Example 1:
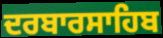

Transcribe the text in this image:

ਦਰਬਾਰਸਾਹਿਬ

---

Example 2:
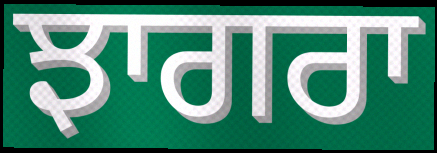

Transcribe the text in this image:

ਝਾਗਰਾ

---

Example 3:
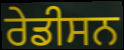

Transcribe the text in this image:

ਰੇਡੀਸਨ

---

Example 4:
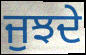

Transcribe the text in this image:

ਜੁਝਦੇ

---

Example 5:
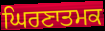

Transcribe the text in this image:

ਘਿਰਣਾਤਮਕ